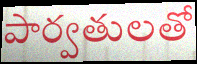
పార్వతులతో